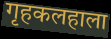
गृहकलहाला